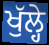
ਖੁੱਲ੍ਹੇ